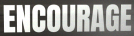
ENCOURAGE